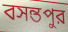
বসন্তপুর